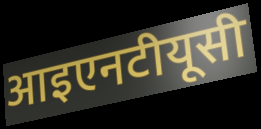
आइएनटीयूसी